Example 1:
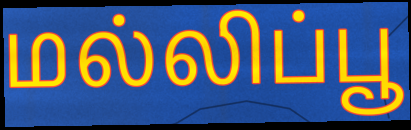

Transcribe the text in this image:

மல்லிப்பூ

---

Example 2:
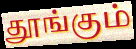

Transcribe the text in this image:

தூங்கும்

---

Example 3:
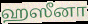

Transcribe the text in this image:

ஹஸீனா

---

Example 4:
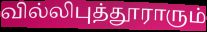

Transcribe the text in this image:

வில்லிபுத்தூராரும்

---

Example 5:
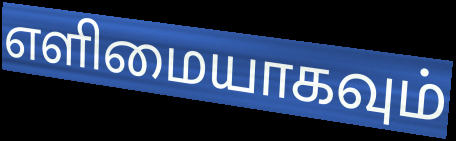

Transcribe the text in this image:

எளிமையாகவும்